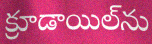
క్రూడాయిల్‌ను